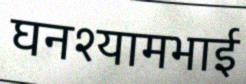
घनश्यामभाई